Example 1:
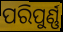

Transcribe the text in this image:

ପରିପୁର୍ଣ୍ଣ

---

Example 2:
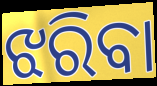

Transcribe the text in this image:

ଝରିବା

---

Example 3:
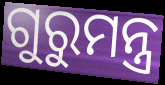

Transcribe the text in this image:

ଗୁରୁମନ୍ତ୍ର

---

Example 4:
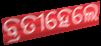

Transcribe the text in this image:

ବ୍ରତୀହେଲେ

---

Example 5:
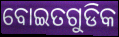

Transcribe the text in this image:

ବୋଇତଗୁଡିକ